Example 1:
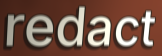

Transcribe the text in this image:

redact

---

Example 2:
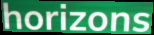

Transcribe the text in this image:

horizons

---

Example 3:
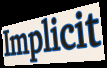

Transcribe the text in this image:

Implicit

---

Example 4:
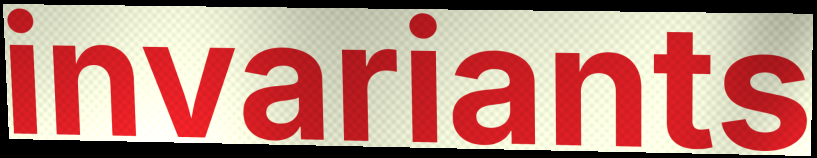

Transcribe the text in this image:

invariants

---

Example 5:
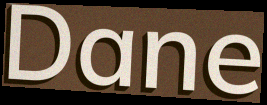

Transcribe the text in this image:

Dane